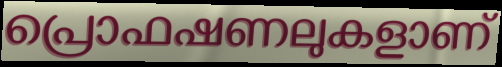
പ്രൊഫഷണലുകളാണ്